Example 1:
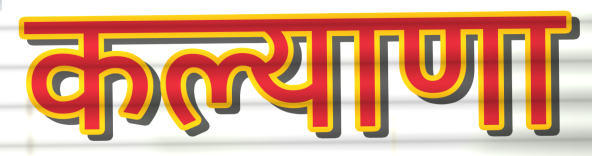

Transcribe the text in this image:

कल्याणा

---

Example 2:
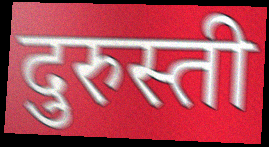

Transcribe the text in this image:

दुरुस्ती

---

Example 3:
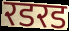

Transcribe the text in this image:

रडरड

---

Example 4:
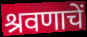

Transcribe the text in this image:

श्रवणाचें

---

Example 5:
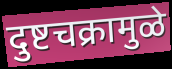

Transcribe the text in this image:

दुष्टचक्रामुळे